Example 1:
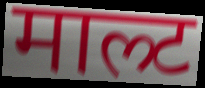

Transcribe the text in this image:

माल्ट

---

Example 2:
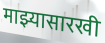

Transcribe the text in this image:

माझ्यासारखी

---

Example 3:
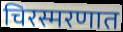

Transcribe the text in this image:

चिरस्मरणात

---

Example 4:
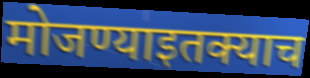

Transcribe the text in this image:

मोजण्याइतक्याच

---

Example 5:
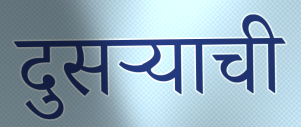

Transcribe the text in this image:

दुसऱ्याची